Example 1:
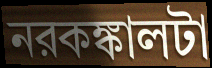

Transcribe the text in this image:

নরকঙ্কালটা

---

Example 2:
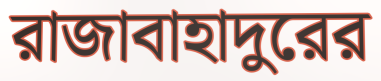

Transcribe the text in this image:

রাজাবাহাদুরের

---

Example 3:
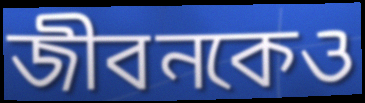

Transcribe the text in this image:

জীবনকেও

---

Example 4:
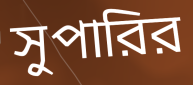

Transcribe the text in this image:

সুপারির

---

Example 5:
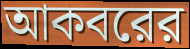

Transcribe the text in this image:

আকবরের